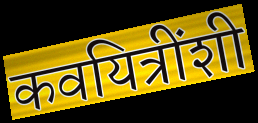
कवयित्रींशी